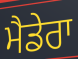
ਮੈਡੇਰਾ